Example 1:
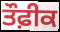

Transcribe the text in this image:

ਤੌਫ਼ੀਕ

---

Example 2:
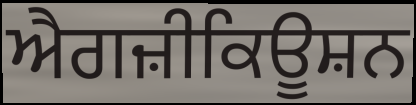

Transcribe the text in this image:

ਐਗਜ਼ੀਕਿਊਸ਼ਨ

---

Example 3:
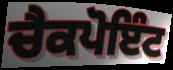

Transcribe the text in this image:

ਚੈਕਪੋਇੰਟ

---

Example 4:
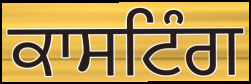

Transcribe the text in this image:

ਕਾਸਟਿੰਗ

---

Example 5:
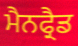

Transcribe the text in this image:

ਮੈਨਫ੍ਰੈਡ